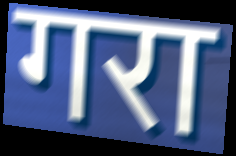
गरा